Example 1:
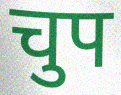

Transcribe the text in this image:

चुप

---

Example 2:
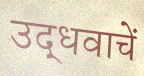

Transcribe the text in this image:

उद्धवाचें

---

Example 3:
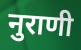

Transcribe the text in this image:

नुराणी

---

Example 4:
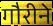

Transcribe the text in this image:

गौरीने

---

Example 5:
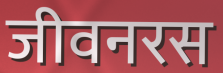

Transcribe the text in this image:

जीवनरस